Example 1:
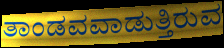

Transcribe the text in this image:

ತಾಂಡವವಾಡುತ್ತಿರುವ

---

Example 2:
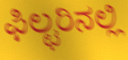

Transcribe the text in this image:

ಫಿಲ್ಟರಿನಲ್ಲಿ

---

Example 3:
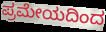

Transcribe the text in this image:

ಪ್ರಮೇಯದಿಂದ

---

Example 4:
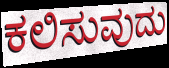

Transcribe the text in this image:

ಕಲಿಸುವುದು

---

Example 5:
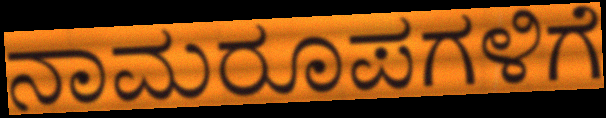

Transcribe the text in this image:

ನಾಮರೂಪಗಳಿಗೆ